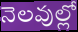
నెలవుల్లో